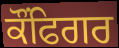
ਕੌਂਫਿਗਰ